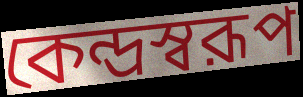
কেন্দ্রস্বরূপ